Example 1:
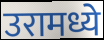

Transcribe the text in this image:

उरामध्ये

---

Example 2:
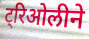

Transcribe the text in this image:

ट्रिओलीने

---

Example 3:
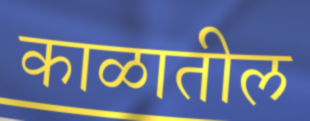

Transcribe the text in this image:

काळातील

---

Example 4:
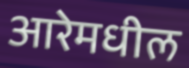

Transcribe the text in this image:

आरेमधील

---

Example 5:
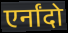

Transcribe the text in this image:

एर्नांदो